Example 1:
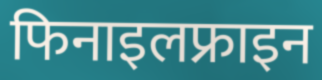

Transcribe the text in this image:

फिनाइलफ्राइन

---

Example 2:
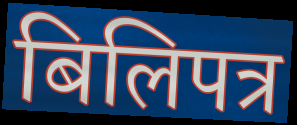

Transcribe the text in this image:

बिलिपत्र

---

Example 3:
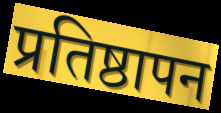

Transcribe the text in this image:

प्रतिष्ठापन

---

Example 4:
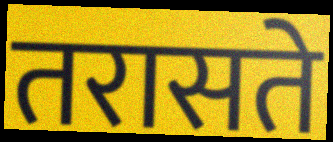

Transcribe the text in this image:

तरासते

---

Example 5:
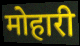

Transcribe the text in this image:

मोहारी